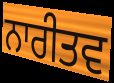
ਨਾਰੀਤਵ